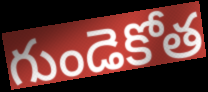
గుండెకోత